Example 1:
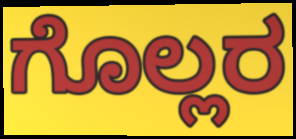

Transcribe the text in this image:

ಗೊಲ್ಲರ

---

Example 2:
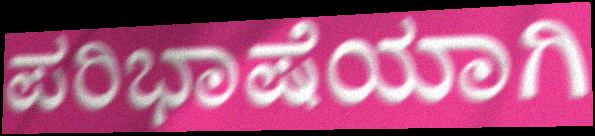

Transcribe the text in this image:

ಪರಿಭಾಷೆಯಾಗಿ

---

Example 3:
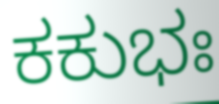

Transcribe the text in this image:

ಕಕುಭಃ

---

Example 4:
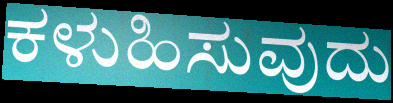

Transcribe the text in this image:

ಕಳುಹಿಸುವುದು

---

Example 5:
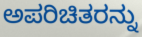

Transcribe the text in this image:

ಅಪರಿಚಿತರನ್ನು